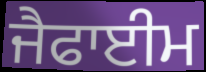
ਜੈਫਾਈਮ